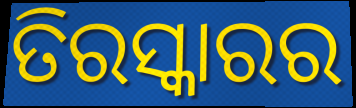
ତିରସ୍କାରର